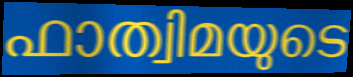
ഫാത്വിമയുടെ